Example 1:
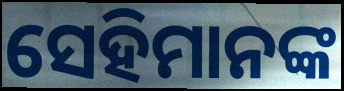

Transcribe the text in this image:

ସେହିମାନଙ୍କ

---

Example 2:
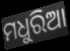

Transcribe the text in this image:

ମଧୁରିଆ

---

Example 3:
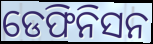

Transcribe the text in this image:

ଡେଫିନିସନ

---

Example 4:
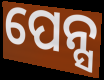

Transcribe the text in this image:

ପେନ୍ସ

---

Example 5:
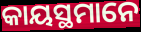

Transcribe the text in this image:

କାୟସ୍ଥମାନେ